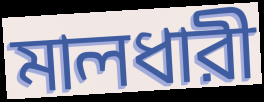
মালধারী